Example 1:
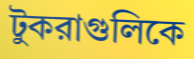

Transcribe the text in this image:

টুকরাগুলিকে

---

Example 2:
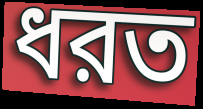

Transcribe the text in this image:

ধরত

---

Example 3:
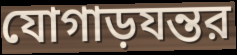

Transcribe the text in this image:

যোগাড়যন্তর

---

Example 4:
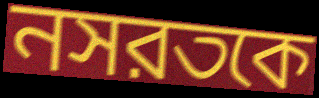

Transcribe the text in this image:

নসরতকে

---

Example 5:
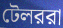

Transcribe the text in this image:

টেলররা